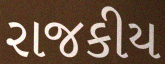
રાજકીય